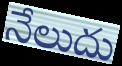
నేలుదు